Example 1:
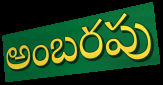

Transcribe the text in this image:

అంబరపు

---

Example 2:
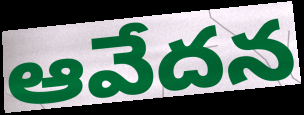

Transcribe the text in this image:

ఆవేదన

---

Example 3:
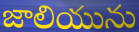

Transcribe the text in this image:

జాలియును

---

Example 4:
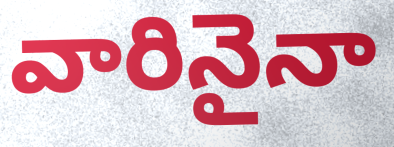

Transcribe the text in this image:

వారినైనా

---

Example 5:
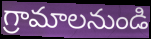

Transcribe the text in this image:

గ్రామాలనుండి